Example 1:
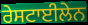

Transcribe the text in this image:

ਰੇਸਟਾਈਲੇਨ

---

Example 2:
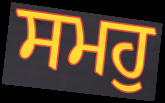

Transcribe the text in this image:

ਸਮਹੁ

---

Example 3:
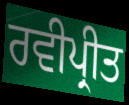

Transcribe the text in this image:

ਰਵੀਪ੍ਰੀਤ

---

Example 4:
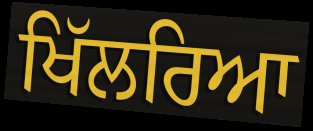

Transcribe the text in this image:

ਖਿੱਲਰਿਆ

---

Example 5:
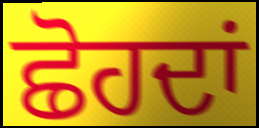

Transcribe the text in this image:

ਛੋਹਦਾਂ